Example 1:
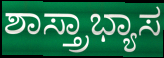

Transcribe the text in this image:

ಶಾಸ್ತ್ರಾಭ್ಯಾಸ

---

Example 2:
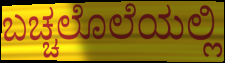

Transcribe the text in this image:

ಬಚ್ಚಲೊಲೆಯಲ್ಲಿ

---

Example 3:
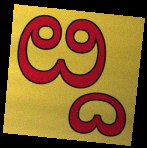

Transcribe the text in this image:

ೞ್ದ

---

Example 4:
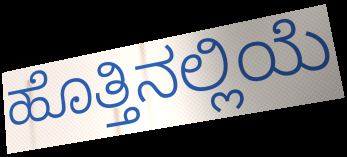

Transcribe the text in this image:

ಹೊತ್ತಿನಲ್ಲಿಯೆ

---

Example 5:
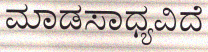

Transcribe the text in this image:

ಮಾಡಸಾಧ್ಯವಿದೆ